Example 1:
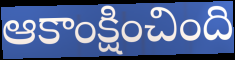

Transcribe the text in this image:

ఆకాంక్షించింది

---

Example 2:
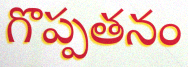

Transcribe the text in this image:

గొప్పతనం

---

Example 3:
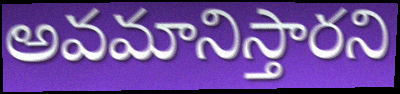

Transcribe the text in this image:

అవమానిస్తారని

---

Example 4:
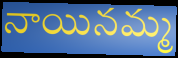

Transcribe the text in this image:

నాయినమ్మ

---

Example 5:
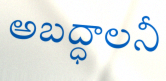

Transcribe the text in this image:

అబద్ధాలనీ